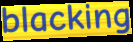
blacking